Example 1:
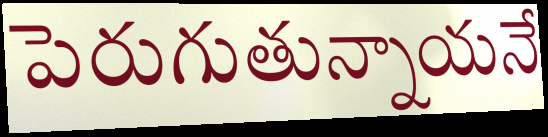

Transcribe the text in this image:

పెరుగుతున్నాయనే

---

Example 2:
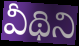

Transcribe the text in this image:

వీథిని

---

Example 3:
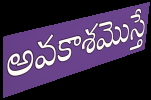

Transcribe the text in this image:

అవకాశమొస్తే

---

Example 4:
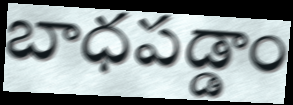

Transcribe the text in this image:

బాధపడ్డాం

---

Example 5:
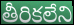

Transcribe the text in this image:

తీరికలేని